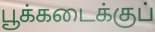
பூக்கடைக்குப்